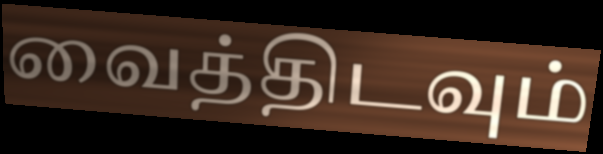
வைத்திடவும்